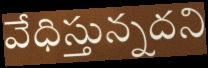
వేధిస్తున్నదని